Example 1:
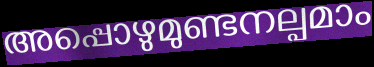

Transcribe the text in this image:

അപ്പൊഴുമുണ്ടനല്പമാം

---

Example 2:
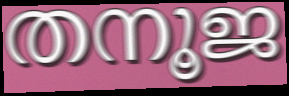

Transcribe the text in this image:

തനൂജ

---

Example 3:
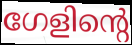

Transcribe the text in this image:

ഗേളിന്റെ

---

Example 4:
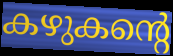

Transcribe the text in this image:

കഴുകന്റെ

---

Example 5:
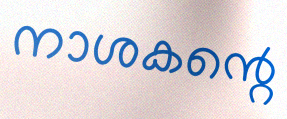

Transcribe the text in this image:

നാശകന്റെ